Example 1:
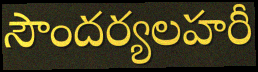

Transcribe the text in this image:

సౌందర్యలహరీ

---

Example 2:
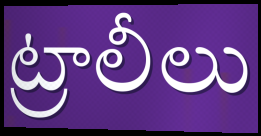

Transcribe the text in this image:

ట్రాలీలు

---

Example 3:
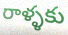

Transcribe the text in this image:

రాళ్ళకు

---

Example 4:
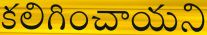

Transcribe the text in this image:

కలిగించాయని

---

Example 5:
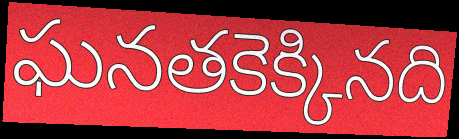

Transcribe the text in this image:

ఘనతకెక్కినది